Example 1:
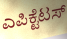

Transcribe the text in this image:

ಎಪಿಕ್ಟೆಟಸ್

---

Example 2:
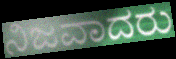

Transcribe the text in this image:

ನಿಜವಾದರು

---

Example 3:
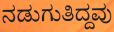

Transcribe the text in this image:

ನಡುಗುತಿದ್ದವು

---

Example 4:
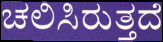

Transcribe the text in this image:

ಚಲಿಸಿರುತ್ತದೆ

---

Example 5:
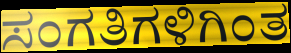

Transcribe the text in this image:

ಸಂಗತಿಗಳಿಗಿಂತ